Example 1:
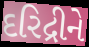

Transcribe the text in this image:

દરિદ્રીને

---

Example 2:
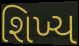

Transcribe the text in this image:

શિખ્ય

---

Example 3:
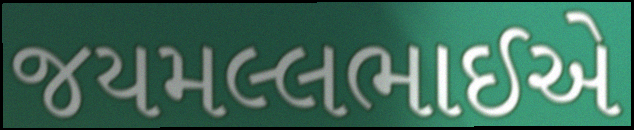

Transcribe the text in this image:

જયમલ્લભાઈએ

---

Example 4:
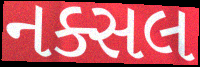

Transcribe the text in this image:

નક્સલ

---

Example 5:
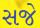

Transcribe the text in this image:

સજે